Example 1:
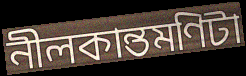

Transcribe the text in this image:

নীলকান্তমণিটা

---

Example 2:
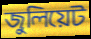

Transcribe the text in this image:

জুলিয়েট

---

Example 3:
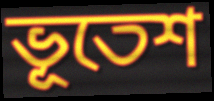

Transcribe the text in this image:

ভূতেশ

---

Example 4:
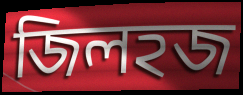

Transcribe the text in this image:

জিলহজ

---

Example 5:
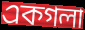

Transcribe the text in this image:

একগলা